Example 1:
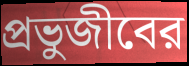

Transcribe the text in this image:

প্রভুজীবের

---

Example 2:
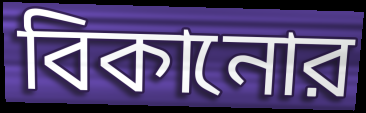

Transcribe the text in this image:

বিকানোর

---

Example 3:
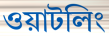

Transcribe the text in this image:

ওয়াটলিং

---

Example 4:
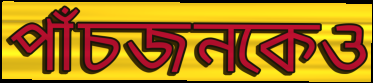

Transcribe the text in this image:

পাঁচজনকেও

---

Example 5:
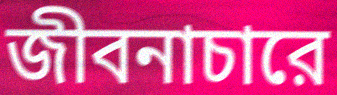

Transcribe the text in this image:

জীবনাচারে